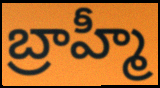
బ్రాహ్మీ